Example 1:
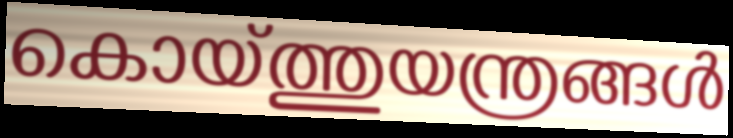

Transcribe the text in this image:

കൊയ്ത്തുയന്ത്രങ്ങൾ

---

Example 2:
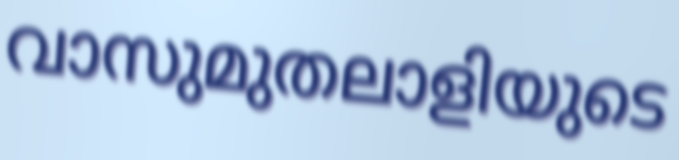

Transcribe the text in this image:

വാസുമുതലാളിയുടെ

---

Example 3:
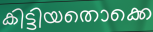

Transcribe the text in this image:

കിട്ടിയതൊക്കെ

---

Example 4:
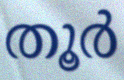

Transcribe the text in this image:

തൂർ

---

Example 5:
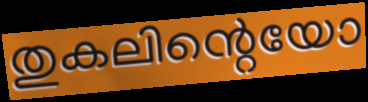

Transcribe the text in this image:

തുകലിന്റെയോ